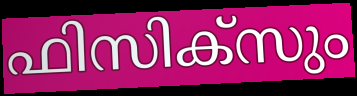
ഫിസിക്സും